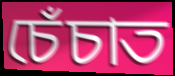
চেঁচাত